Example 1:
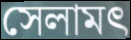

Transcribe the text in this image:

সেলামৎ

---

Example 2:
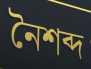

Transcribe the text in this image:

নৈশব্দ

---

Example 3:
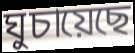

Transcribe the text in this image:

ঘুচায়েছে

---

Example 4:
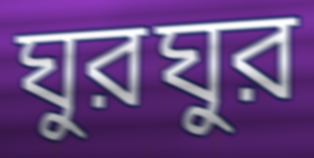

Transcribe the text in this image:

ঘুরঘুর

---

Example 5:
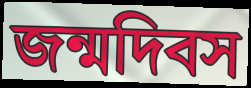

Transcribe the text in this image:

জন্মদিবস